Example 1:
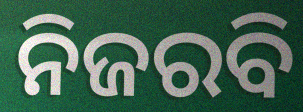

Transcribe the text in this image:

ନିଜରବି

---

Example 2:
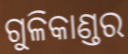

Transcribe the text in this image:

ଗୁଳିକାଣ୍ଡର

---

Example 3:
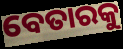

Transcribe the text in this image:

ବେତାରକୁ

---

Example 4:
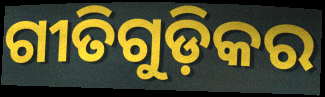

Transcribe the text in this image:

ଗୀତିଗୁଡ଼ିକର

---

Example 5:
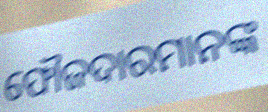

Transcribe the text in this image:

ଫୌଜଦାରମାନଙ୍କ